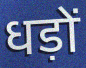
धड़ों